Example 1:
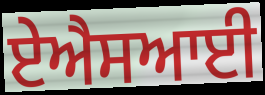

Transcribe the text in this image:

ਏਐਸਆਈ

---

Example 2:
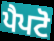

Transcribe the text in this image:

ਪੈਪਟੋ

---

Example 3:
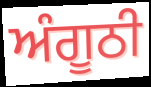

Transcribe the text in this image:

ਅੰਗੂਠੀ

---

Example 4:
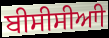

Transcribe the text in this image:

ਬੀਸੀਸੀਆੀ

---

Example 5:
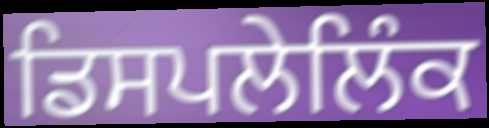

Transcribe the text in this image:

ਡਿਸਪਲੇਲਿੰਕ